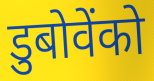
डुबोवेंको